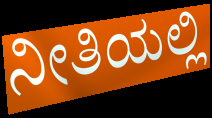
ನೀತಿಯಲ್ಲಿ